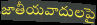
జాతీయవాదులపై